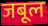
जबूल